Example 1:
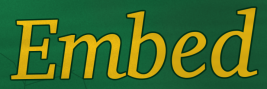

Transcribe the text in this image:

Embed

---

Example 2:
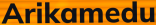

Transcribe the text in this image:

Arikamedu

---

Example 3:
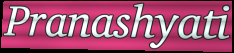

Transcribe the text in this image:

Pranashyati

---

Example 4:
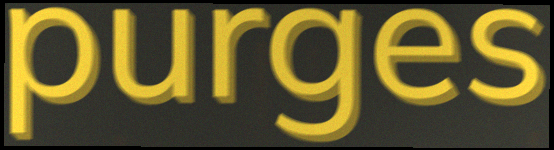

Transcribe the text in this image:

purges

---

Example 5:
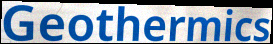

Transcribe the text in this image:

Geothermics